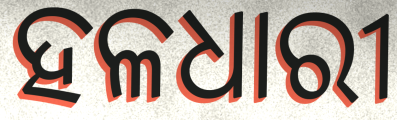
ହଳଧାରୀ